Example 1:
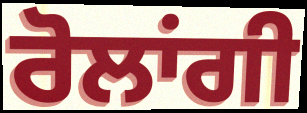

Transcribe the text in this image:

ਰੋਲਾਂਗੀ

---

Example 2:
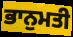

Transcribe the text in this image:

ਭਾਨੁਮਤੀ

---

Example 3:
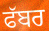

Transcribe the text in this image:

ਫੱਬਰ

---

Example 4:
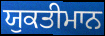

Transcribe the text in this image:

ਯੁਕਤੀਮਾਨ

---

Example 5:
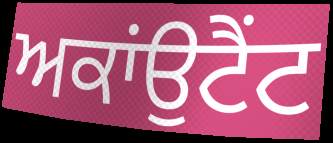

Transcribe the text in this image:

ਅਕਾਂਉਟੈਂਟ